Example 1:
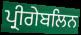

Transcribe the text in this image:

ਪ੍ਰੀਗੇਬਲਿਨ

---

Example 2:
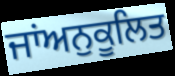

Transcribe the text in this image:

ਜਾਂਅਨੁਕੂਲਿਤ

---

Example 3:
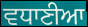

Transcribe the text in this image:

ਵਧਾਣੀਆ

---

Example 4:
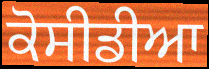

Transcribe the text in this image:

ਕੋਸੀਡੀਆ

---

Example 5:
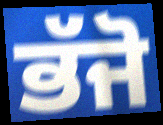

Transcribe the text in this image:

ਭੱਜੋ